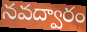
నవద్వారం